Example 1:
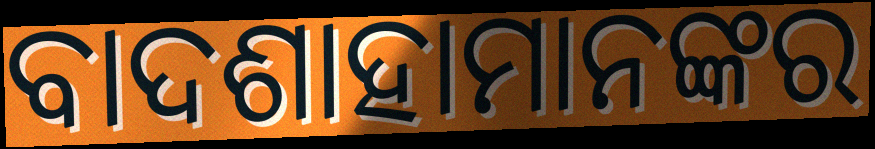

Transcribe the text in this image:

ବାଦଶାହାମାନଙ୍କର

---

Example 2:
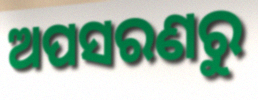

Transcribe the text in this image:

ଅପସରଣରୁ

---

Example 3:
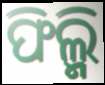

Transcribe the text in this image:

ଫିଲ୍ମି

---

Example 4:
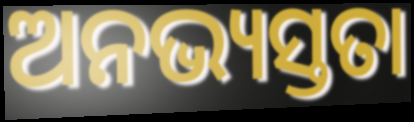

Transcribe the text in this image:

ଅନଭ୍ୟସ୍ତତା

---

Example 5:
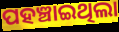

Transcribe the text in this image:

ପହଞ୍ଚାଇଥିଲା